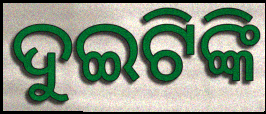
ଦୁଇଟିଙ୍କି